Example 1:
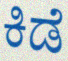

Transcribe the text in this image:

ಕಿಡೆ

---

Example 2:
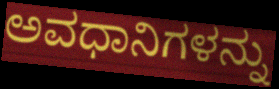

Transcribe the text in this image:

ಅವಧಾನಿಗಳನ್ನು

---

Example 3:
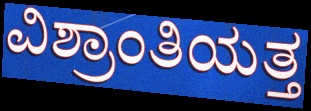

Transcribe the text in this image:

ವಿಶ್ರಾಂತಿಯತ್ತ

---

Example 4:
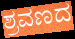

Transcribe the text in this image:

ಶ್ರವಣದ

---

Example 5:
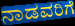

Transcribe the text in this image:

ನಾಡವರಿಗೆ